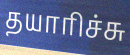
தயாரிச்சு